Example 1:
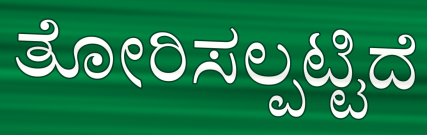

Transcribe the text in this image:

ತೋರಿಸಲ್ಪಟ್ಟಿದೆ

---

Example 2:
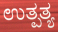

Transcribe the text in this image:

ಉತ್ಪತ್ಯ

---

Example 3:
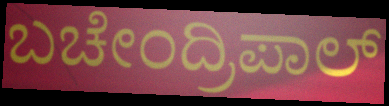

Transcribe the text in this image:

ಬಚೇಂದ್ರಿಪಾಲ್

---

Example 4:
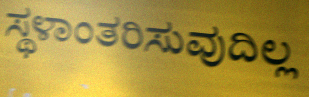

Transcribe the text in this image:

ಸ್ಥಳಾಂತರಿಸುವುದಿಲ್ಲ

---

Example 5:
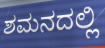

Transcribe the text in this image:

ಶಮನದಲ್ಲಿ